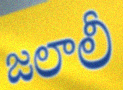
జలాలీ